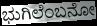
ಭುಗಿಲೆಂಬನೋ